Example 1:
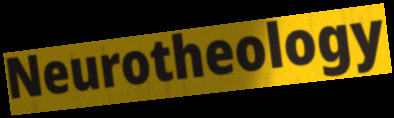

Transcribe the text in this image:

Neurotheology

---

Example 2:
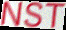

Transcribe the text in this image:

NST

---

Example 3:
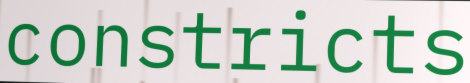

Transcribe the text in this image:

constricts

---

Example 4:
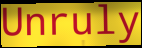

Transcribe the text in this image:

Unruly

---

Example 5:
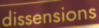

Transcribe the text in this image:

dissensions